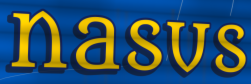
nasus